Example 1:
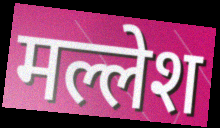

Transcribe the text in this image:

मल्लेश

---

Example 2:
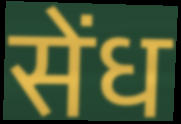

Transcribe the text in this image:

सेंध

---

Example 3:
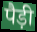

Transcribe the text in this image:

पैड़ी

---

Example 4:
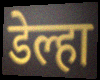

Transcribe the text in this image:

डेल्हा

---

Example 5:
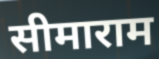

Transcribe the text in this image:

सीमाराम